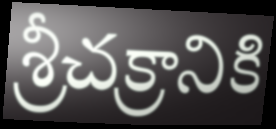
శ్రీచక్రానికి